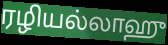
ரழியல்லாஹு